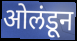
ओलंडून